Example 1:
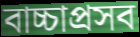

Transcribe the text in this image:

বাচ্চাপ্রসব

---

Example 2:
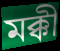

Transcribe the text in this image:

মক্কী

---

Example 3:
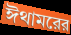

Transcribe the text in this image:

ঈথামরের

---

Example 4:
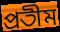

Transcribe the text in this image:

প্রতীম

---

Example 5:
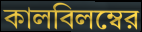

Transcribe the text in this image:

কালবিলম্বের